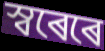
স্বৰেৰে